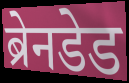
ब्रेनडेड